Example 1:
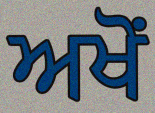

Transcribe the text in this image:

ਅਖੋਂ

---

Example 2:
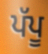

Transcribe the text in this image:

ਪੱਪੂ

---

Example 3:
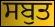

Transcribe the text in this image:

ਸਬੁਤ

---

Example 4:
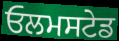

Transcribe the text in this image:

ਓਲਮਸਟੇਡ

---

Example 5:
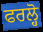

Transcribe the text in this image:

ਫਰਲ੍ਹੋ